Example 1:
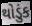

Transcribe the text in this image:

થોડુંક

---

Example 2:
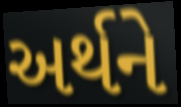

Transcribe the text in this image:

અર્થને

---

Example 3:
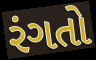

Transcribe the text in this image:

રંગતો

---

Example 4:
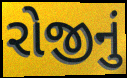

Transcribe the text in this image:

રોજીનું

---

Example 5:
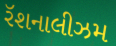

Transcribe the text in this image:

રૅશનાલીઝમ